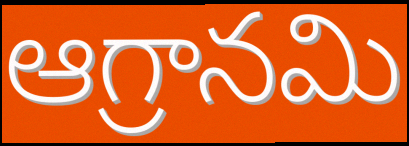
ఆగ్రానమి